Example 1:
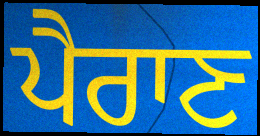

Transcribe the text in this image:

ਪੈਰਾਣ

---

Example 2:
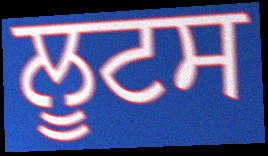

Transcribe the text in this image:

ਲੂਟਸ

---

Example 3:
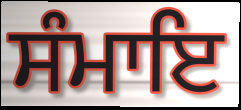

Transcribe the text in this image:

ਸੰਮਾਇ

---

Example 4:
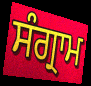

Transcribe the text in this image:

ਸੰਗ੍ਰਾਮ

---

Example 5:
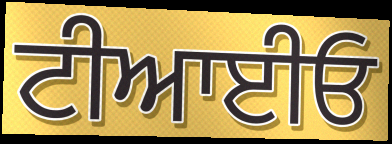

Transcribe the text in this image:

ਟੀਆਈਓ